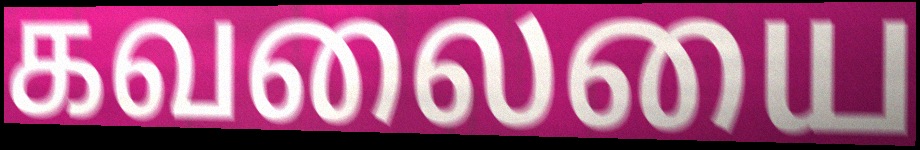
கவலையை